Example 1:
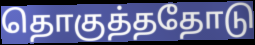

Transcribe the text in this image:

தொகுத்ததோடு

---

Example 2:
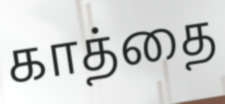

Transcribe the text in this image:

காத்தை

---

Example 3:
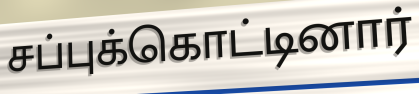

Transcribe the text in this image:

சப்புக்கொட்டினார்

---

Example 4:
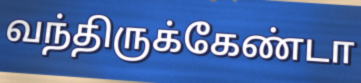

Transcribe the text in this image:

வந்திருக்கேண்டா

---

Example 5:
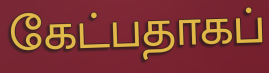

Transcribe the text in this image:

கேட்பதாகப்